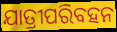
ଯାତ୍ରୀପରିବହନ